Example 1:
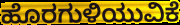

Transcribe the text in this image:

ಹೊರಗುಳಿಯುವಿಕೆ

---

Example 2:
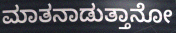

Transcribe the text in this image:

ಮಾತನಾಡುತ್ತಾನೋ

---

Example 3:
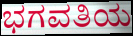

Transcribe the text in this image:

ಭಗವತಿಯ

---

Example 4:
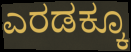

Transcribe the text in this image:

ಎರಡಕ್ಕೂ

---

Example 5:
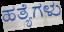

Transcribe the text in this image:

ಹತ್ಯೆಗಳು